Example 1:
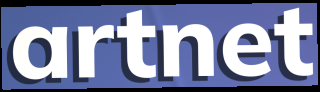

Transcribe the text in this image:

artnet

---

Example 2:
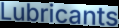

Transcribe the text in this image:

Lubricants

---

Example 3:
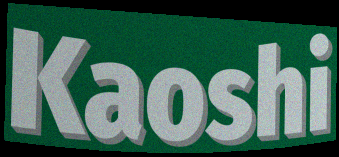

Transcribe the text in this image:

Kaoshi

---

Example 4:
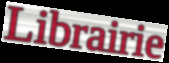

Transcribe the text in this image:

Librairie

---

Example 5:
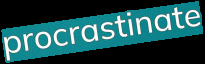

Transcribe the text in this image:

procrastinate